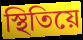
স্থিতিয়ে